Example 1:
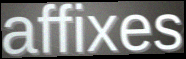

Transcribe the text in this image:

affixes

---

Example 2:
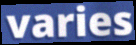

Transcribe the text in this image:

varies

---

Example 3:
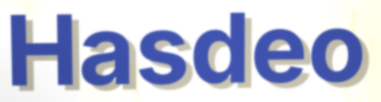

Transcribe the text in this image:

Hasdeo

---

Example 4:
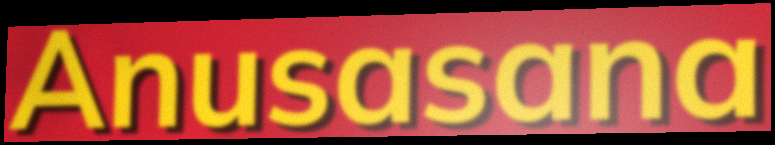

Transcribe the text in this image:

Anusasana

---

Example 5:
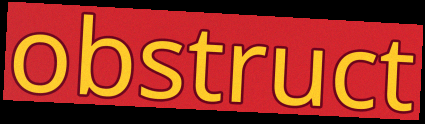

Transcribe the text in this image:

obstruct